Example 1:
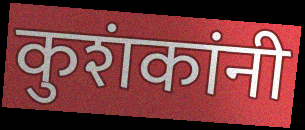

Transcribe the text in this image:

कुशंकांनी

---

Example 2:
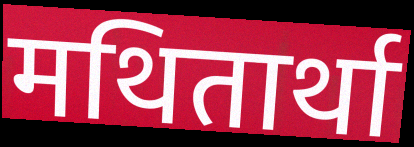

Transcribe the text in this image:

मथितार्था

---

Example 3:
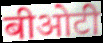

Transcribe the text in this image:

बीओटी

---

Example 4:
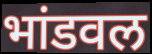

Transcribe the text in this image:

भांडवल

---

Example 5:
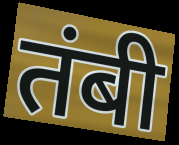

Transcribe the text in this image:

तंबी